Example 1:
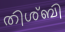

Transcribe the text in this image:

തിശ്ബി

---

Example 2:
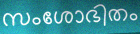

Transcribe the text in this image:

സംശോഭിതം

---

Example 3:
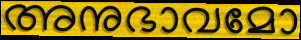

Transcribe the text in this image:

അനുഭാവമോ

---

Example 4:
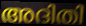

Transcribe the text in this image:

അദിതി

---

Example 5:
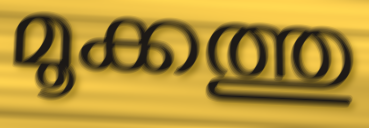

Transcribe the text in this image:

മൂക്കത്തു